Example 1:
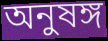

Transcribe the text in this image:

অনুষঙ্গ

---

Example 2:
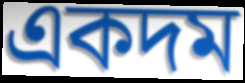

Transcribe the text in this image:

একদম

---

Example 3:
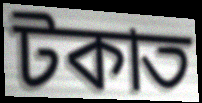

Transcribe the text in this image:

টকাত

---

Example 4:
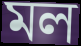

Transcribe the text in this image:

মল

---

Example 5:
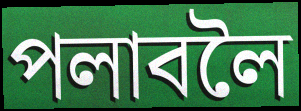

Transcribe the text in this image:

পলাবলৈ